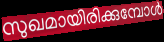
സുഖമായിരിക്കുമ്പോൾ